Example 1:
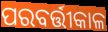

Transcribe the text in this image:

ପରବର୍ତ୍ତୀକାଳ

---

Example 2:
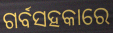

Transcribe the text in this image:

ଗର୍ବସହକାରେ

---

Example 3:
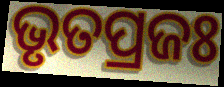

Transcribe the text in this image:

ଭୃତପ୍ରଜଃ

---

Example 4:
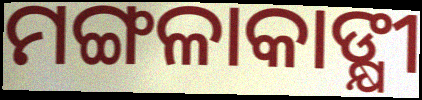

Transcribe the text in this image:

ମଙ୍ଗଳାକାଙ୍କ୍ଷୀ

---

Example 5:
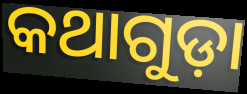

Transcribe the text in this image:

କଥାଗୁଡ଼ା